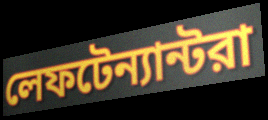
লেফটেন্যান্টরা